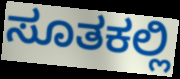
ಸೂತಕಲ್ಲಿ